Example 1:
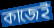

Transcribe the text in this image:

কাজেই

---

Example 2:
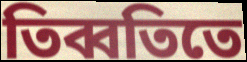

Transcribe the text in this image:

তিব্বতিতে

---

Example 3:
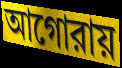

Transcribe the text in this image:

আগোরায়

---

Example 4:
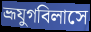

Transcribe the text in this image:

ভ্রূযুগবিলাসে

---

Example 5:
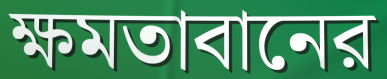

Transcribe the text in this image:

ক্ষমতাবানের